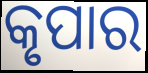
କୃପାର